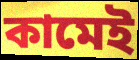
কামেই